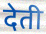
देती